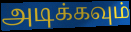
அடிக்கவும்